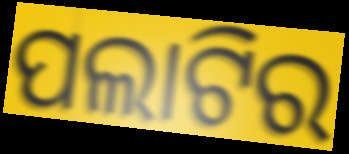
ପଲାଟିର